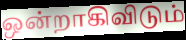
ஒன்றாகிவிடும்